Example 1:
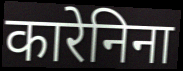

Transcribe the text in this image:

कारेनिना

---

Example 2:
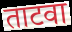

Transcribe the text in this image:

ताटवा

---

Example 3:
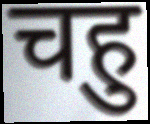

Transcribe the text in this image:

चहु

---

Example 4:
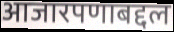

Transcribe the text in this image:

आजारपणाबद्दल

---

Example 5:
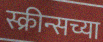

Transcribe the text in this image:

स्क्रीन्सच्या